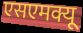
एसएमक्यू